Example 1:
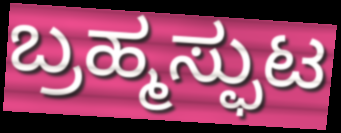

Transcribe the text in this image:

ಬ್ರಹ್ಮಸ್ಫುಟ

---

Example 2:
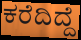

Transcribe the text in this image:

ಕರೆದಿದ್ದೆ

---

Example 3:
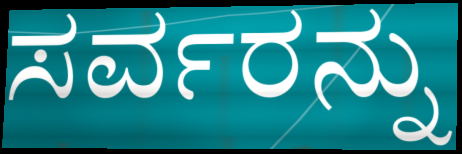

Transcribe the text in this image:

ಸರ್ವರನ್ನು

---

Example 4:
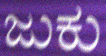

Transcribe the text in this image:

ಜುಕು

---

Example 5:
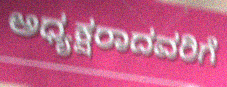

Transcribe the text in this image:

ಅಧ್ಯಕ್ಷರಾದವರಿಗೆ